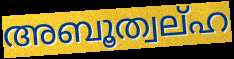
അബൂത്വല്ഹ